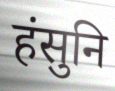
हंसुनि